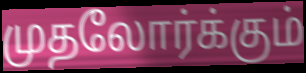
முதலோர்க்கும்